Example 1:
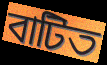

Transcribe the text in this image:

বাটিত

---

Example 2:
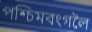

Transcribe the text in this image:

পশ্চিমবংগলৈ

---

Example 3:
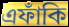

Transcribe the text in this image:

এফাঁকি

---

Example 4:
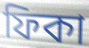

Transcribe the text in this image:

ফিকা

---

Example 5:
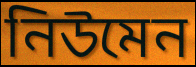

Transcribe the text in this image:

নিউমেন